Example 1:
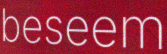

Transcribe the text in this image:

beseem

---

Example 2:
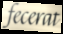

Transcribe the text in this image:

fecerat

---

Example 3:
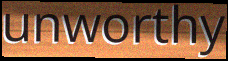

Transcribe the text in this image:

unworthy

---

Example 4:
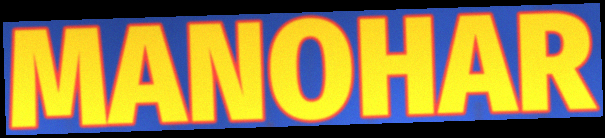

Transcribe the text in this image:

MANOHAR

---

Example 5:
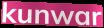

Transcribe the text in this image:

kunwar